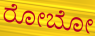
ರೋಬೋ